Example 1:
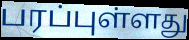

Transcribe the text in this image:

பரப்புள்ளது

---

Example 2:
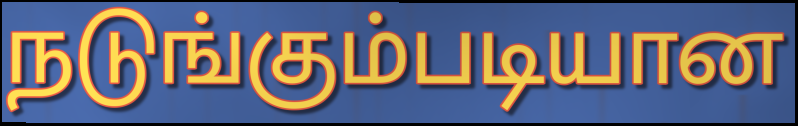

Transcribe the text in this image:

நடுங்கும்படியான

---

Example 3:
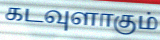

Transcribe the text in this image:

கடவுளாகும்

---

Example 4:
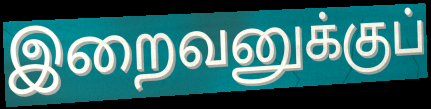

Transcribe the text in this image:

இறைவனுக்குப்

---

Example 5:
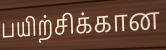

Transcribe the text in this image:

பயிற்சிக்கான